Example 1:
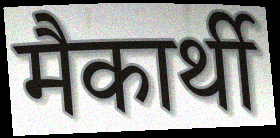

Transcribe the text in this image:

मैकार्थी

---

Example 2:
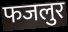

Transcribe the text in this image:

फजलुर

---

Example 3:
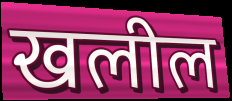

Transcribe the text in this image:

खलील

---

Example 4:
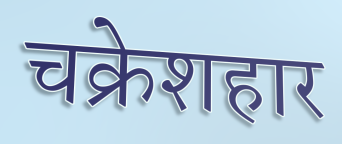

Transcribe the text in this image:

चक्रेशहार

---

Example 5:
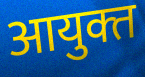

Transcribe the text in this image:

आयुक्‍त